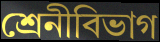
শ্রেনীবিভাগ